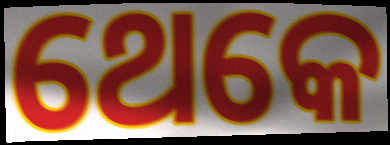
ଥେକେ